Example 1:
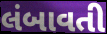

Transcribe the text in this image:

લંબાવતી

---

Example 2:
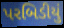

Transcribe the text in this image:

પરબિડીયું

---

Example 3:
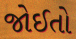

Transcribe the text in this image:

જોઈતો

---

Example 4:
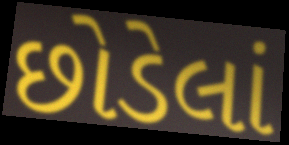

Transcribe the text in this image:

છોડેલાં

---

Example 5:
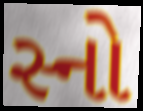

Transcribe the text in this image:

સ્નો